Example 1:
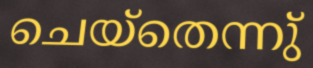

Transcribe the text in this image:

ചെയ്തെന്നു്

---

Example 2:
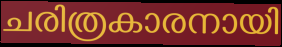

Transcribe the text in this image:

ചരിത്രകാരനായി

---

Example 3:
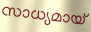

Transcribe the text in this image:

സാധ്യമായ്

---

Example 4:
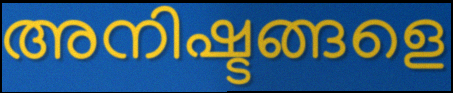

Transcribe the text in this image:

അനിഷ്ടങ്ങളെ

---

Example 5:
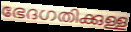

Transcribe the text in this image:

ഭേദഗതിക്കുള്ള